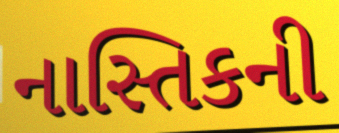
નાસ્તિકની